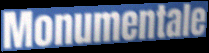
Monumentale